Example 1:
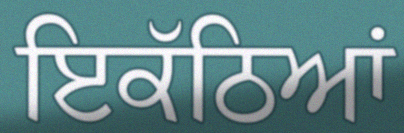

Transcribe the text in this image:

ਇਕੱਠਿਆਂ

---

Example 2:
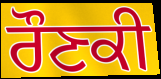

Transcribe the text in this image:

ਰੌਣਕੀ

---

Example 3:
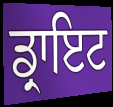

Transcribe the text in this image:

ਡ੍ਰਾਇਟ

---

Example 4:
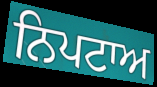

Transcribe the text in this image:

ਨਿਪਟਾਅ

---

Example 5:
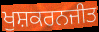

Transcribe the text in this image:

ਖੁਸ਼ਕਰਨਜੀਤ